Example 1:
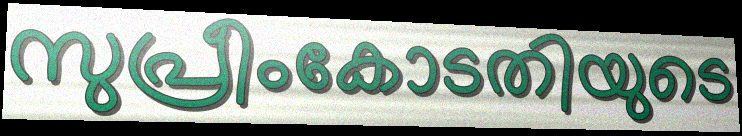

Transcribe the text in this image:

സുപ്രീംകോടതിയുടെ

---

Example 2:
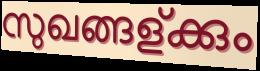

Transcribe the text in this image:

സുഖങ്ങള്ക്കും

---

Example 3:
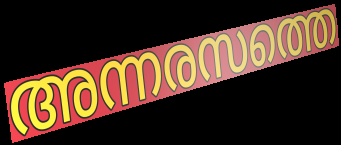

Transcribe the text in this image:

അന്നരസത്തെ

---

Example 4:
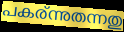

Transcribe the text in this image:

പകര്ന്നുതന്നതു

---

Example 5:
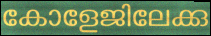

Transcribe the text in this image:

കോളേജിലേക്കു